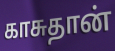
காசுதான்